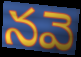
నవె